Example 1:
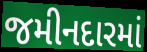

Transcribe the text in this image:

જમીનદારમાં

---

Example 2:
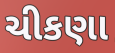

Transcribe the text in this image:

ચીકણા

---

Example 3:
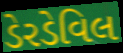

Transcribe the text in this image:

ડેરડેવિલ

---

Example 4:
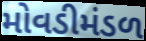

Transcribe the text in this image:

મોવડીમંડળ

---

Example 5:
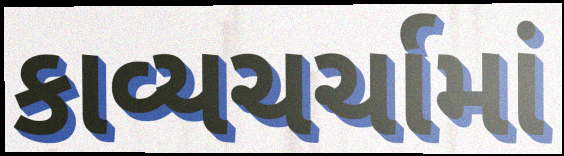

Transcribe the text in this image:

કાવ્યચર્ચામાં